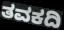
ತವಕದಿ